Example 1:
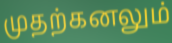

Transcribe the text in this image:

முதற்கனலும்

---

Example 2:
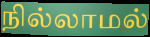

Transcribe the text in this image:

நில்லாமல்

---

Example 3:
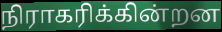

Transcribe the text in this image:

நிராகரிக்கின்றன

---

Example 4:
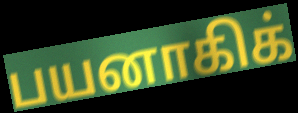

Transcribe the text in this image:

பயனாகிக்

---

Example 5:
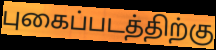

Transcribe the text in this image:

புகைப்படத்திற்கு